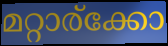
മറ്റാര്ക്കോ